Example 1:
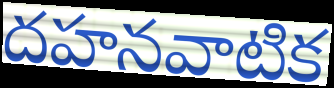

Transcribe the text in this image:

దహనవాటిక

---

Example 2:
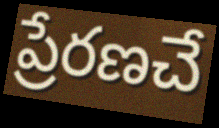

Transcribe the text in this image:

ప్రేరణచే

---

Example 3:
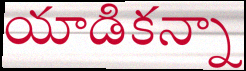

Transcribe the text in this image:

యాడికన్నా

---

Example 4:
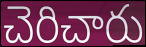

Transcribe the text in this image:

చెరిచారు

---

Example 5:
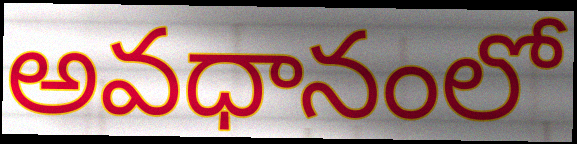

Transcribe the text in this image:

అవధానంలో